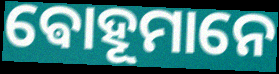
ଵୋହୂମାନେ